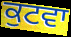
ਕੁਟਵਾ